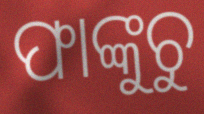
ଫାଙ୍କୁଚୁ